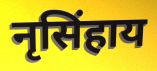
नृसिंहाय